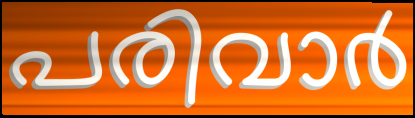
പരിവാർ